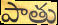
పాతు